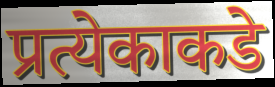
प्रत्येकाकडे